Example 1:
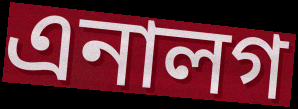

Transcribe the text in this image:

এনালগ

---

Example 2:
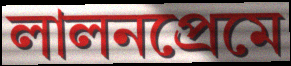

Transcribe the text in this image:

লালনপ্রেমে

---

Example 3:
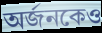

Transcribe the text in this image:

অর্জনকেও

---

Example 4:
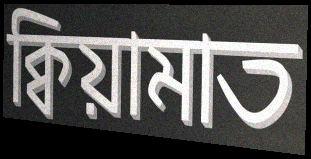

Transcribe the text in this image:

ক্বিয়ামাত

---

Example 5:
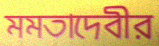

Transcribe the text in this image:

মমতাদেবীর